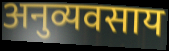
अनुव्यवसाय